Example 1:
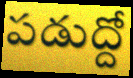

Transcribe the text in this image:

పడుద్దో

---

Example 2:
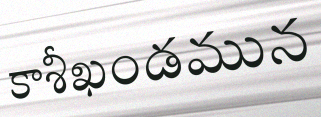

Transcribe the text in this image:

కాశీఖండమున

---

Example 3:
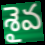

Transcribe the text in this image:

శైవ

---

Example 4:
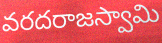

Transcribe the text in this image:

వరదరాజస్వామి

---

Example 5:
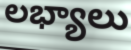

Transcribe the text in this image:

లభ్యాలు